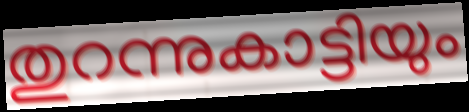
തുറന്നുകാട്ടിയും